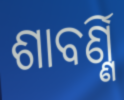
ଶାବର୍ଣ୍ଣି